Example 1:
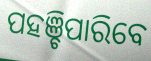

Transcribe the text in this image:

ପହଞ୍ଚିପାରିବେ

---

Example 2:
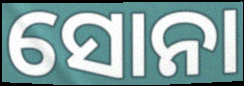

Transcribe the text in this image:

ସୋନା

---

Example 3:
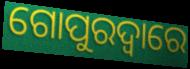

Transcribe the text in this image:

ଗୋପୁରଦ୍ଵାରେ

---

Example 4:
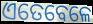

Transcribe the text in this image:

ଏତେବେଳେ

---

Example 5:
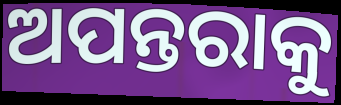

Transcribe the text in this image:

ଅପନ୍ତରାକୁ